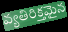
వ్యతిరిక్తమైన